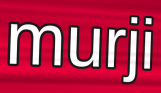
murji